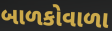
બાળકોવાળા